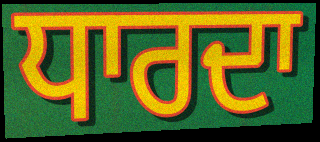
ਧਾਰਦਾ